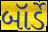
બૉર્ડે